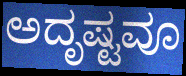
ಅದೃಷ್ಟವೂ